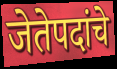
जेतेपदांचे